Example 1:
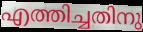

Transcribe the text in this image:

എത്തിച്ചതിനു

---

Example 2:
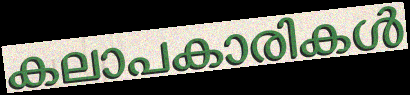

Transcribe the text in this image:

കലാപകാരികൾ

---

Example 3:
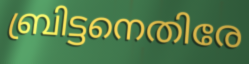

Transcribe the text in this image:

ബ്രിട്ടനെതിരേ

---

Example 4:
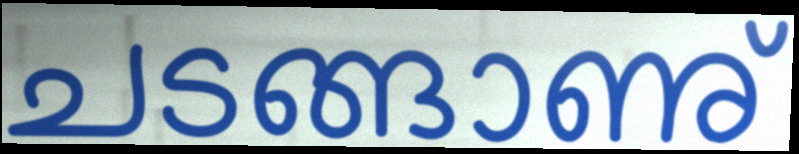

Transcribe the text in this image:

ചടങ്ങാണു്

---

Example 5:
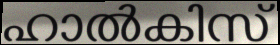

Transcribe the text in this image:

ഹാൽകിസ്